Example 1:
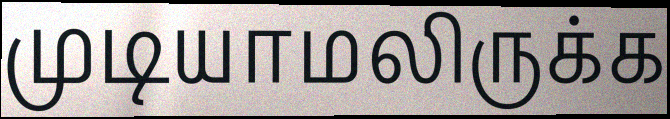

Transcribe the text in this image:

முடியாமலிருக்க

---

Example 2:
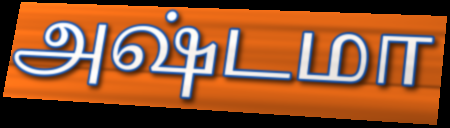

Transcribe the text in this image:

அஷ்டமா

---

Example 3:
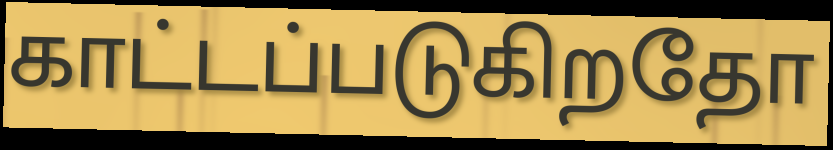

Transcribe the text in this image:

காட்டப்படுகிறதோ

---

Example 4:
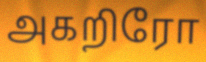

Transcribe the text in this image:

அகறிரோ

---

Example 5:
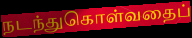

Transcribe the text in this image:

நடந்துகொள்வதைப்